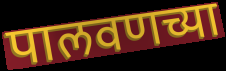
पालवणच्या